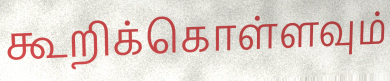
கூறிக்கொள்ளவும்